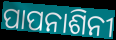
ପାପନାଶିନୀ